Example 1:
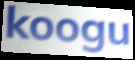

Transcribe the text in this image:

koogu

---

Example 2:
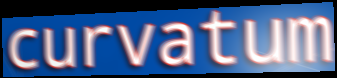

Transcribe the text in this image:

curvatum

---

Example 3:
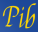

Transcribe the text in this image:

Pib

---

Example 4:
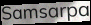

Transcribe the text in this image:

Samsarpa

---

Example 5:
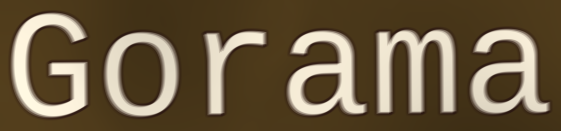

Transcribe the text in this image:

Gorama